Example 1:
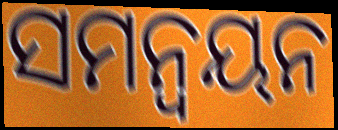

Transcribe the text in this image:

ସମନ୍ୱୟନ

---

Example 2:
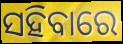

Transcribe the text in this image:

ସହିବାରେ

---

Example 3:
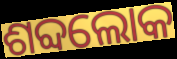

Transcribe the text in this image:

ଶବ୍ଦଲୋକ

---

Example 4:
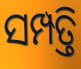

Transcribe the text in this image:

ସମ୍ପତ୍ତି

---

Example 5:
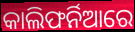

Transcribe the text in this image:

କାଲିଫର୍ନିଆରେ